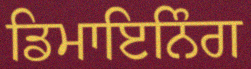
ਡਿਮਾਇਨਿੰਗ